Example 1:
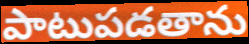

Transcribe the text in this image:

పాటుపడతాను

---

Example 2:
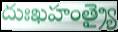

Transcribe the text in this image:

దుఃఖహంత్ర్యై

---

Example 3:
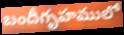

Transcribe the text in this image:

బందీగృహములో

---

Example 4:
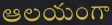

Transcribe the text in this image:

ఆలయంగా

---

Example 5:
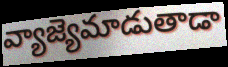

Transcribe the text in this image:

వ్యాజ్యెమాడుతాడా